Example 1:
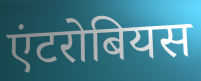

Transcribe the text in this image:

एंटरोबियस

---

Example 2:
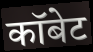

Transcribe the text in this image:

कॉबेट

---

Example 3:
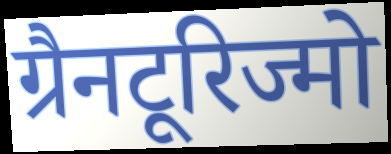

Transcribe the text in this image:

ग्रैनटूरिज्मो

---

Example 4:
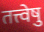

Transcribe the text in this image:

तत्त्वेषु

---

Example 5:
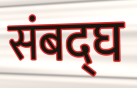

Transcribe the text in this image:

संबद्घ